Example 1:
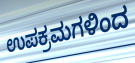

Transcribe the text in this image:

ಉಪಕ್ರಮಗಳಿಂದ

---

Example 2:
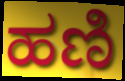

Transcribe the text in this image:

ಹಣಿ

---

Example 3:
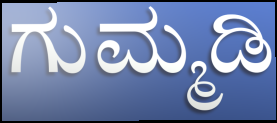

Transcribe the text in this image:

ಗುಮ್ಮಡಿ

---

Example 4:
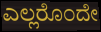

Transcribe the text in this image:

ಎಲ್ಲರೊಂದೇ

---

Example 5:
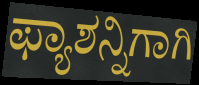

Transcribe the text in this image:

ಫ್ಯಾಶನ್ನಿಗಾಗಿ